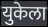
युकेला